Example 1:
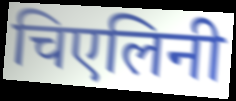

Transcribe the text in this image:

चिएलिनी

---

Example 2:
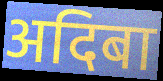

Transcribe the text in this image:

अदिबा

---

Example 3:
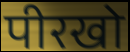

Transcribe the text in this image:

पीरखो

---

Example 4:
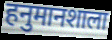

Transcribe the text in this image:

हनुमानशाला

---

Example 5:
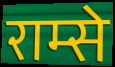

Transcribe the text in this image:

राम्से